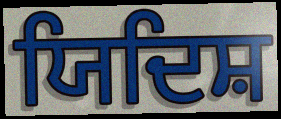
ਯਿਦਿਸ਼